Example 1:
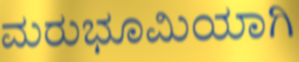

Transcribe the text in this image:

ಮರುಭೂಮಿಯಾಗಿ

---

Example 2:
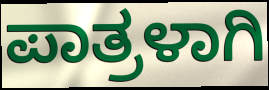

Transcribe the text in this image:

ಪಾತ್ರಳಾಗಿ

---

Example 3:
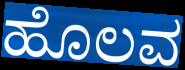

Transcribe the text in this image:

ಹೊಲವ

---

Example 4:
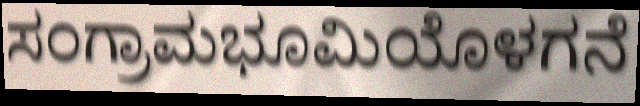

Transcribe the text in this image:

ಸಂಗ್ರಾಮಭೂಮಿಯೊಳಗನೆ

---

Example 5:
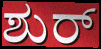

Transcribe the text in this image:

ಶುರ್